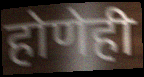
होणेही